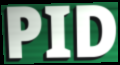
PID